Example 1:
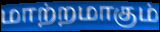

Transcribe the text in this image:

மாற்றமாகும்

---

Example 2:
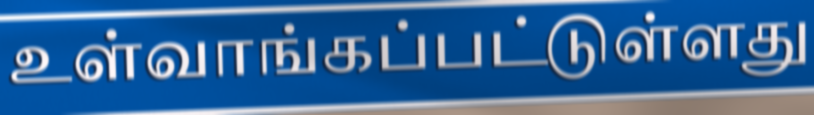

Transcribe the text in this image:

உள்வாங்கப்பட்டுள்ளது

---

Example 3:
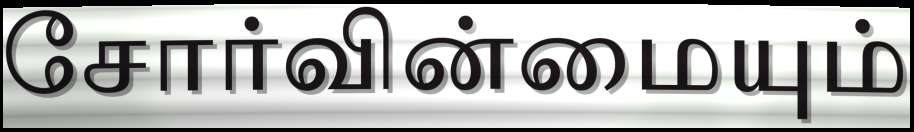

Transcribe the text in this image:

சோர்வின்மையும்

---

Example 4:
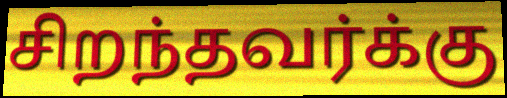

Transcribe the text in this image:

சிறந்தவர்க்கு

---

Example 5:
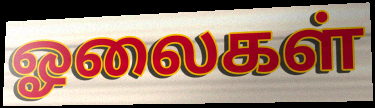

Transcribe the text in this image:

ஓலைகள்